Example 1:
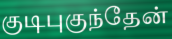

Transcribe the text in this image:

குடிபுகுந்தேன்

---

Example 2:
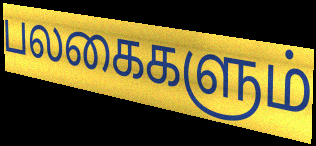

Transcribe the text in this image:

பலகைகளும்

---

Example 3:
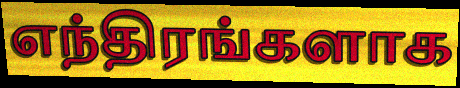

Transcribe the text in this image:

எந்திரங்களாக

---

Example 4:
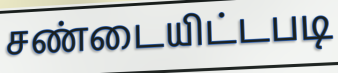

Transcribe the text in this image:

சண்டையிட்டபடி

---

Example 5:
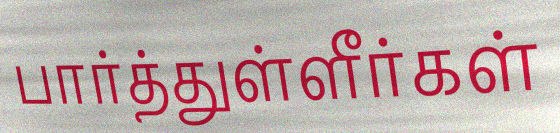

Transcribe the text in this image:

பார்த்துள்ளீர்கள்